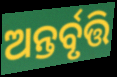
ଅନ୍ତର୍ବୃତ୍ତି